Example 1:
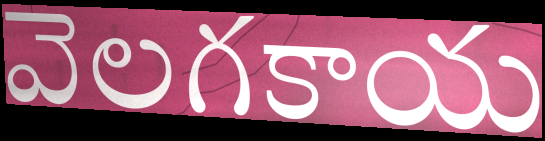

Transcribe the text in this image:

వెలగకాయ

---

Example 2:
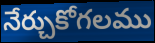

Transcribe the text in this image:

నేర్చుకోగలము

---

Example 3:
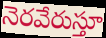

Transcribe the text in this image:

నెరవేరుస్తూ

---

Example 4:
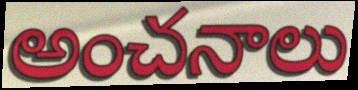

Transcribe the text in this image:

అంచనాలు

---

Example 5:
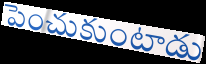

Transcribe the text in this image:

పెంచుకుంటాడు